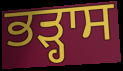
ਭੜ੍ਹਾਸ